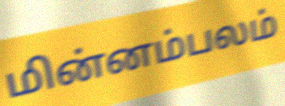
மின்னம்பலம்